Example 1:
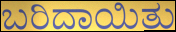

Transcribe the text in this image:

ಬರಿದಾಯಿತು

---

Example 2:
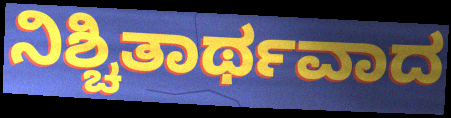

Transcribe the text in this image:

ನಿಶ್ಚಿತಾರ್ಥವಾದ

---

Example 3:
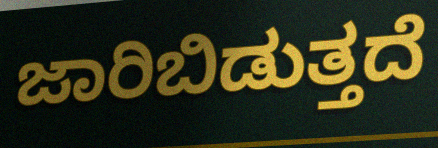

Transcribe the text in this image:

ಜಾರಿಬಿಡುತ್ತದೆ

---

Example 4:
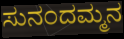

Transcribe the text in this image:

ಸುನಂದಮ್ಮನ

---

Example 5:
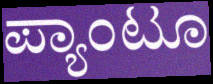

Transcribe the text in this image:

ಪ್ಯಾಂಟೂ